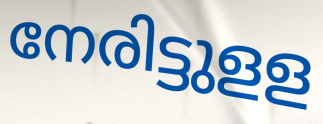
നേരിട്ടുളള